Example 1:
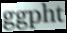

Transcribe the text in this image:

ggpht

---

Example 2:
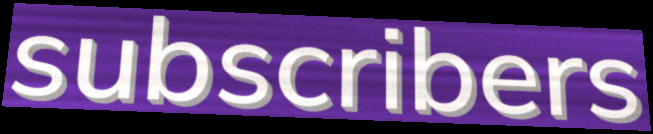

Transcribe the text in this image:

subscribers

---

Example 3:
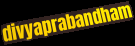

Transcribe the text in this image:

divyaprabandham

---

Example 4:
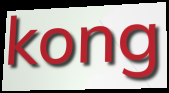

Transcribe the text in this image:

kong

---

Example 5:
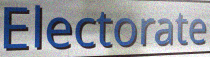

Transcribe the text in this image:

Electorate